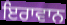
ਇਰਾਵਾਨ